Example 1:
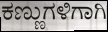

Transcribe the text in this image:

ಕಣ್ಣುಗಳಿಗಾಗಿ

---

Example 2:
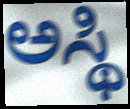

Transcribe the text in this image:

ಅಸ್ಥಿ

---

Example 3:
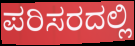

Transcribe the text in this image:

ಪರಿಸರದಲ್ಲಿ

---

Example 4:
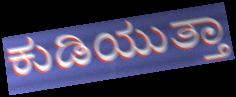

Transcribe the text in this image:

ಕುಡಿಯುತ್ತಾ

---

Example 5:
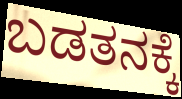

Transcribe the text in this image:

ಬಡತನಕ್ಕೆ